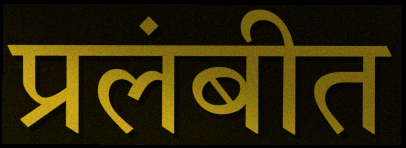
प्रलंबीत